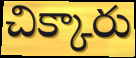
చిక్కారు